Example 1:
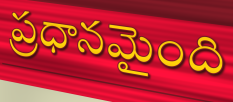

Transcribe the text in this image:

ప్రధానమైంది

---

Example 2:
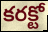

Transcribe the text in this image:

కరక్టో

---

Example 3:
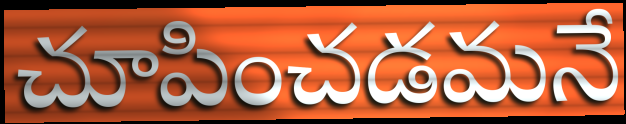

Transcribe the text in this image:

చూపించడమనే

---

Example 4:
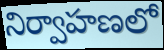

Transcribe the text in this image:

నిర్వాహణలో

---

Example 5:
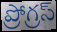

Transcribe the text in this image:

ప్రోగ్రస్